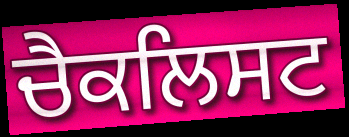
ਚੈਕਲਿਸਟ